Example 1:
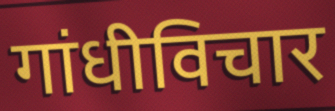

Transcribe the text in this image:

गांधीविचार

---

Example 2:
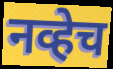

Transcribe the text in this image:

नव्हेच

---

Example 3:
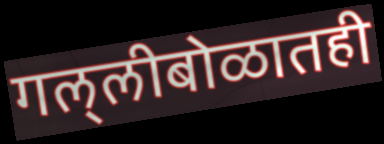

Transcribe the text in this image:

गल्लीबोळातही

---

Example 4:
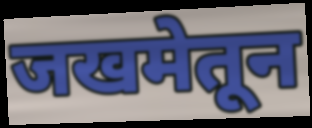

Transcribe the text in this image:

जखमेतून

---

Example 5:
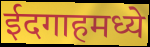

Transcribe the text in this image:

ईदगाहमध्ये